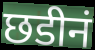
छडीनं